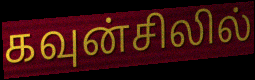
கவுன்சிலில்